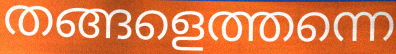
തങ്ങളെത്തന്നെ